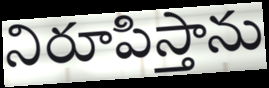
నిరూపిస్తాను